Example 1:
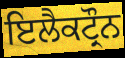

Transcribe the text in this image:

ਇਲੈਕਟ੍ਰੌਨ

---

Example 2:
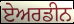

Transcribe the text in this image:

ਏਅਰਡੀਨ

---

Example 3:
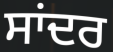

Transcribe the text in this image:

ਸਾਂਦਰ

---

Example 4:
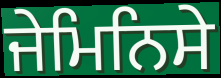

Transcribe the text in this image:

ਜੇਮਿਨਿਸੇ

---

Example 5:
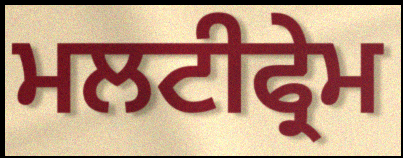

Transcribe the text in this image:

ਮਲਟੀਫ੍ਰੇਮ